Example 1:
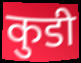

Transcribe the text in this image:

कुडी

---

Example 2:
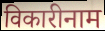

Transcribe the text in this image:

विकारीनाम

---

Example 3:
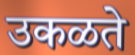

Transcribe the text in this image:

उकळते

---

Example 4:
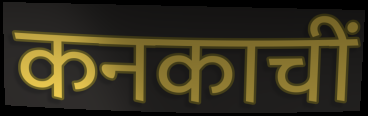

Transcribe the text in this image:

कनकाचीं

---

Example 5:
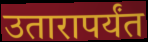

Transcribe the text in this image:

उतारापर्यंत